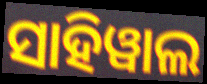
ସାହିୱାଲ